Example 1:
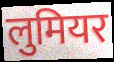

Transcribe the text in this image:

लुमियर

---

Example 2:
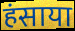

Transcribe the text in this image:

हंसाया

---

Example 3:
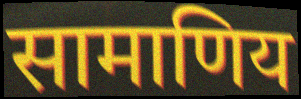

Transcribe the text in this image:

सामाणिय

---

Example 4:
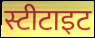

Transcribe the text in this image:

स्टीटाइट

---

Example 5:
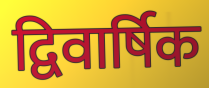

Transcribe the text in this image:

द्विवार्षिक